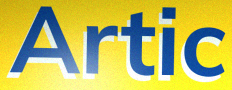
Artic